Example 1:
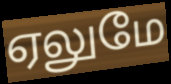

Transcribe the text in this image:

ஏலுமே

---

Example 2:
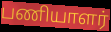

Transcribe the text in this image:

பணியாளர்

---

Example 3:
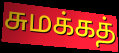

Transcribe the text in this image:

சுமக்கத்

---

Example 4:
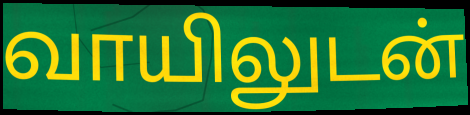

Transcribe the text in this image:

வாயிலுடன்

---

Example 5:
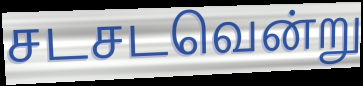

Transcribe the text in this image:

சடசடவென்று